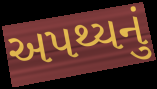
અપથ્યનું